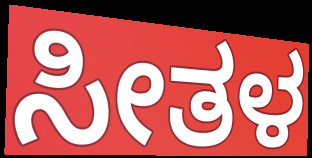
ಸೀತಳ